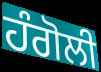
ਹੰਗੋਲੀ